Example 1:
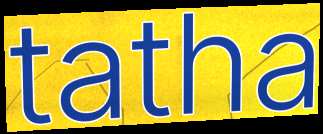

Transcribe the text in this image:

tatha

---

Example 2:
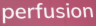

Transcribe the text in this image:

perfusion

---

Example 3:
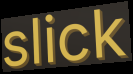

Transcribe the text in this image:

slick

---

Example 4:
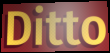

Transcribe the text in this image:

Ditto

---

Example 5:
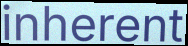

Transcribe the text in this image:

inherent